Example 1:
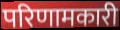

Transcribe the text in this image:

परिणामकारी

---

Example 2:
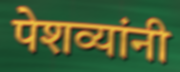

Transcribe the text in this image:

पेशव्यांनी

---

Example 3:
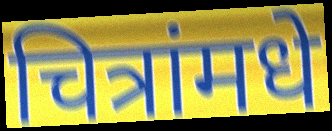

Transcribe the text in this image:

चित्रांमधे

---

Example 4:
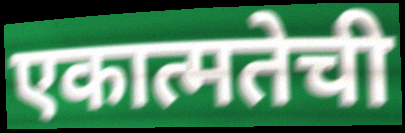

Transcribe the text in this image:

एकात्मतेची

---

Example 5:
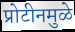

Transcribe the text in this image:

प्रोटीनमुळे